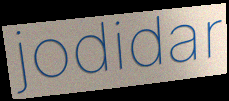
jodidar